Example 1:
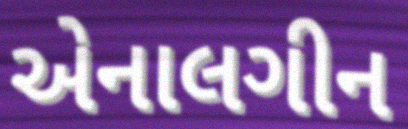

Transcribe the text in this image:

એનાલગીન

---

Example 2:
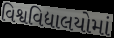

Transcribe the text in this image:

વિશ્વવિદ્યાલયોમાં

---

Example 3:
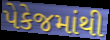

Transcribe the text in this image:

પેકેજમાંથી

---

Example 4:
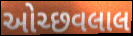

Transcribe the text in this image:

ઓચ્છવલાલ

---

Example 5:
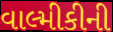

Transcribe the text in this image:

વાલ્મીકીની